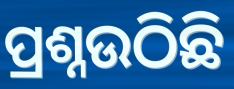
ପ୍ରଶ୍ନଉଠିଛି